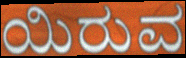
ಯಿರುವ